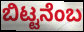
ಬಿಟ್ಟನೆಂಬ